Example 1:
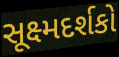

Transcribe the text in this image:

સૂક્ષ્મદર્શકો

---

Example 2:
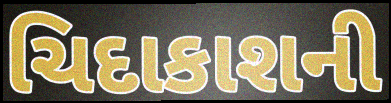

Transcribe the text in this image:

ચિદાકાશની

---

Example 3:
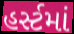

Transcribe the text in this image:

હર્સ્ટમાં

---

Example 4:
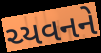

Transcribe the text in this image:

ચ્યવનને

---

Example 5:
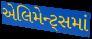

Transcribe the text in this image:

એલિમેન્ટ્સમાં